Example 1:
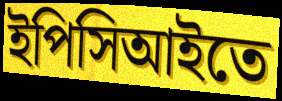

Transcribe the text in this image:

ইপিসিআইতে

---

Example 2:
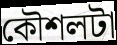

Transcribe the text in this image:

কৌশলটা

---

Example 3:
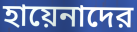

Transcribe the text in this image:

হায়েনাদের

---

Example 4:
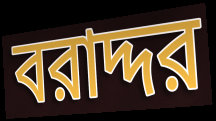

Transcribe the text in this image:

বরাদ্দর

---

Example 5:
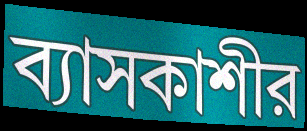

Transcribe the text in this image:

ব্যাসকাশীর